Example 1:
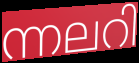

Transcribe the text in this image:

ന്നലറി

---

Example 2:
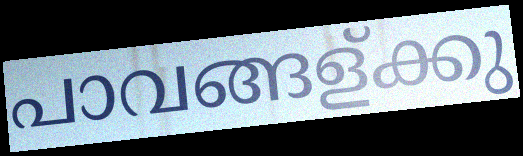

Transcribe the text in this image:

പാവങ്ങള്ക്കു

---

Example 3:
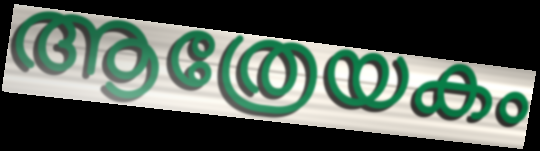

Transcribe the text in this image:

ആത്രേയകം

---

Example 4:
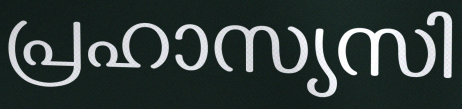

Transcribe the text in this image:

പ്രഹാസ്യസി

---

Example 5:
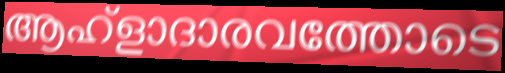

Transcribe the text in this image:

ആഹ്ളാദാരവത്തോടെ